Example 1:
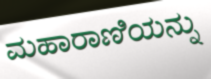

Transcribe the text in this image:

ಮಹಾರಾಣಿಯನ್ನು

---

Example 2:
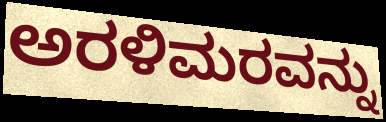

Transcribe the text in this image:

ಅರಳಿಮರವನ್ನು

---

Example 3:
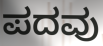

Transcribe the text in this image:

ಪದವು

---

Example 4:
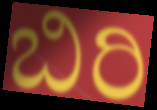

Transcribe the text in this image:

ಬಿರಿ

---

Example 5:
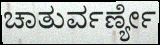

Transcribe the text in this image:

ಚಾತುರ್ವರ್ಣ್ಯೇ